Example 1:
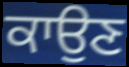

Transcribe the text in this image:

ਕਾਉਣ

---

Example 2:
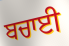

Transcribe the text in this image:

ਬਚਾਈ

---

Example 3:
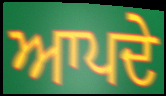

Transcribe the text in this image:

ਆਪਦੇ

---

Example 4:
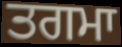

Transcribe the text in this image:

ਤਗਮਾ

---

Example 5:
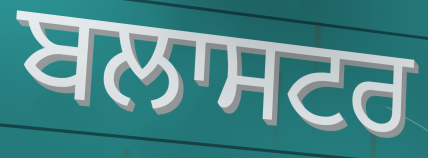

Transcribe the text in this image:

ਬਲਾਸਟਰ